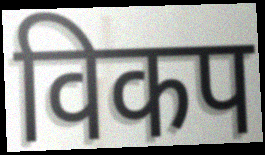
विकप